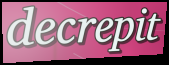
decrepit